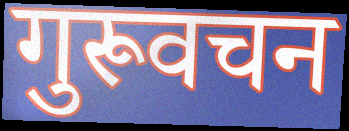
गुरूवचन